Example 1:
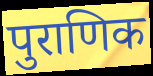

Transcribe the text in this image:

पुराणिक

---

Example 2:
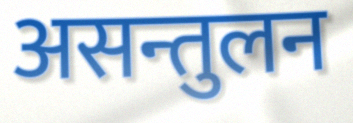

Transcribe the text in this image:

असन्तुलन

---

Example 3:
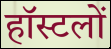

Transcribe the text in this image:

हॉस्टलों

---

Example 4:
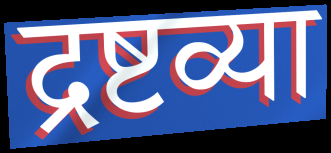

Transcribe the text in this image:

द्रष्टव्या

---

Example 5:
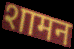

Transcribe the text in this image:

शामन